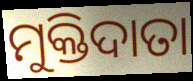
ମୁକ୍ତିଦାତା